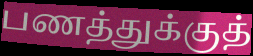
பணத்துக்குத்